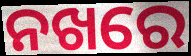
ନଖରେ